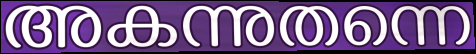
അകന്നുതന്നെ